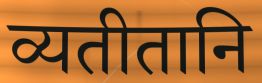
व्यतीतानि